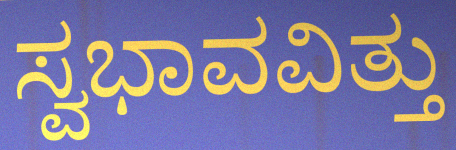
ಸ್ವಭಾವವಿತ್ತು